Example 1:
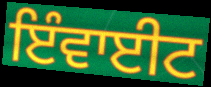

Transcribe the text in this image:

ਇੰਵਾਈਟ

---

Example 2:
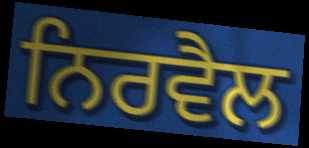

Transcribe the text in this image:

ਨਿਰਵੈਲ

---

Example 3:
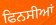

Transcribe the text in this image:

ਫਿਨਸੀਆਂ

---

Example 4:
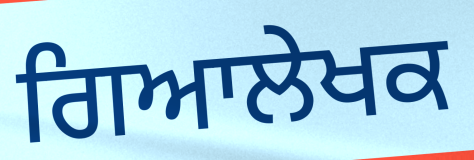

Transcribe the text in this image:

ਗਿਆਲੇਖਕ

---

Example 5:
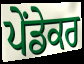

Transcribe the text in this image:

ਪੇਂਡੇਕਰ